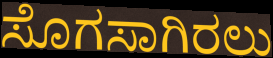
ಸೊಗಸಾಗಿರಲು